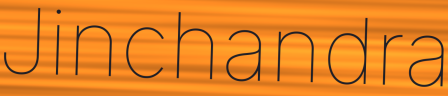
Jinchandra